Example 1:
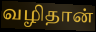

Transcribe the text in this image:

வழிதான்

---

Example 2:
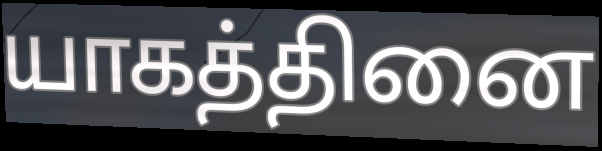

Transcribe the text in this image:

யாகத்தினை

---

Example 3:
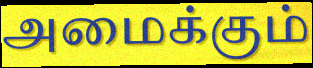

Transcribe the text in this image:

அமைக்கும்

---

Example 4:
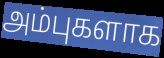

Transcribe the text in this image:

அம்புகளாக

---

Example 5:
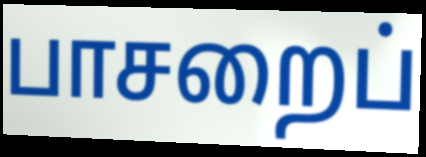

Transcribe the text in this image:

பாசறைப்